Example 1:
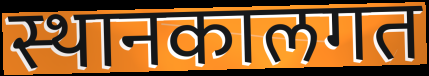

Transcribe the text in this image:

स्थानकालगत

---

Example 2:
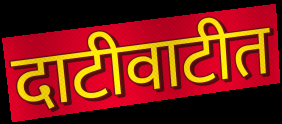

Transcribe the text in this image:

दाटीवाटीत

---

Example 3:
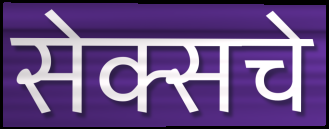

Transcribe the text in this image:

सेक्सचे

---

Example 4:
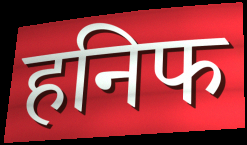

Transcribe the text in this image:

हनिफ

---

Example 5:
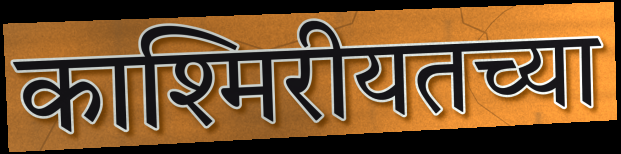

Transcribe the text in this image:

काश्मिरीयतच्या